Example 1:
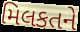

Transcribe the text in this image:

મિલકતને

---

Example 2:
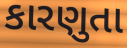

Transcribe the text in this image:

કારણુતા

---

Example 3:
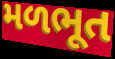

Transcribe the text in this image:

મળભૂત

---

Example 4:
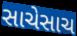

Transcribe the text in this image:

સાચેસાચ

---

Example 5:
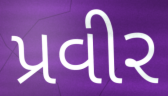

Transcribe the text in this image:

પ્રવીર